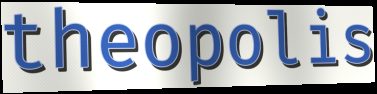
theopolis